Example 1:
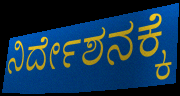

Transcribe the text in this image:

ನಿರ್ದೇಶನಕ್ಕೆ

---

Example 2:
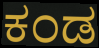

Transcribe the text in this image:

ಕಂಡ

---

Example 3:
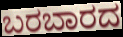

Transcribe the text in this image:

ಬರಬಾರದ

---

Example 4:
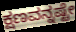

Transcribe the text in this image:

ಕ್ಷಣವನ್ನಷ್ಟೇ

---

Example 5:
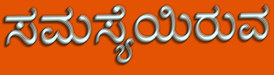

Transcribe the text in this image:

ಸಮಸ್ಯೆಯಿರುವ